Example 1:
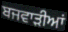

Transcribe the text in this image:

ਬਜਵਾੜੀਆਂ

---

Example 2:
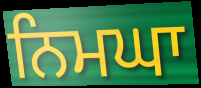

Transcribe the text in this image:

ਨਿਮਘਾ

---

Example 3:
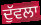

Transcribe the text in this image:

ਦੁੱਵਲਾ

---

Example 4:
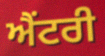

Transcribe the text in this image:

ਐਂਟਰੀ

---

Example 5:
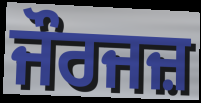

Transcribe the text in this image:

ਜੌਰਜਜ਼